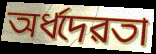
অৰ্ধদেৱতা